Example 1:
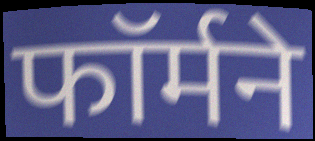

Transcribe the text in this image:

फॉर्मने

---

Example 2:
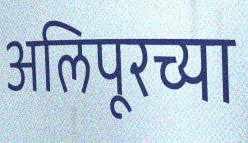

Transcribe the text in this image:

अलिपूरच्या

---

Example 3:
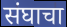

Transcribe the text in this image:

संघाचा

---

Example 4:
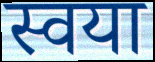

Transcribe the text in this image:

स्वया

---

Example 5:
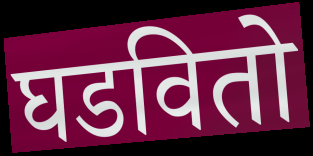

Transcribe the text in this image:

घडवितो